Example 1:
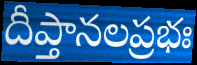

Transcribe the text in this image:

దీప్తానలప్రభః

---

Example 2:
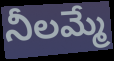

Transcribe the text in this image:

నీలమ్మే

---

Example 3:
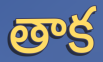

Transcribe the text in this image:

తాక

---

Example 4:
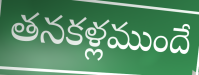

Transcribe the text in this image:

తనకళ్లముందే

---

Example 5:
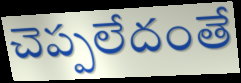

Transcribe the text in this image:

చెప్పలేదంతే